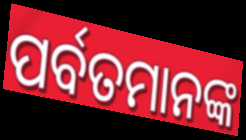
ପର୍ବତମାନଙ୍କ